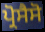
ਪ੍ਰੋਸੈਸੋ